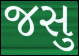
જસુ